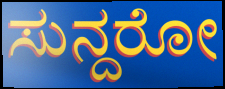
ಸುನ್ದರೋ